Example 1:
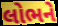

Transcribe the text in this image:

લોભને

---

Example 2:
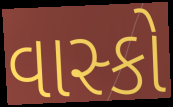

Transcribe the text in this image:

વાસ્કો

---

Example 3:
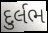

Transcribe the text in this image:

દુર્લભ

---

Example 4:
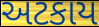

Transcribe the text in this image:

અટકાય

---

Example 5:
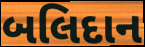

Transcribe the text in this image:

બલિદાન